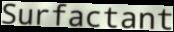
Surfactant